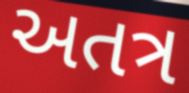
અતત્ર